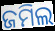
ଜମିଲ